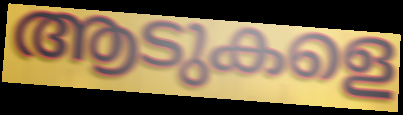
ആടുകളെ